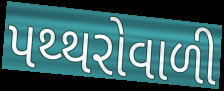
પથ્થરોવાળી